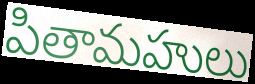
పితామహులు